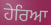
ਹੇਰਿਆ